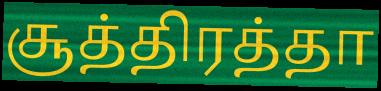
சூத்திரத்தா